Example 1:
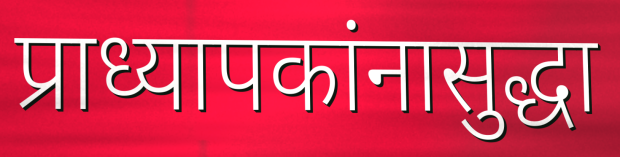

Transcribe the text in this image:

प्राध्यापकांनासुद्धा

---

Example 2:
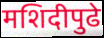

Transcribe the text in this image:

मशिदीपुढे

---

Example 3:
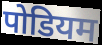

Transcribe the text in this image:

पोडियम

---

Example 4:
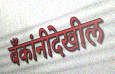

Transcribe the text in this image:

बँकांनीदेखील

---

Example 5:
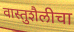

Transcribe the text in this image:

वास्तुशैलीचा